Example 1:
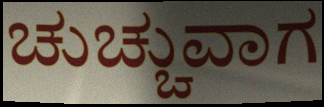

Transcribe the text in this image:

ಚುಚ್ಚುವಾಗ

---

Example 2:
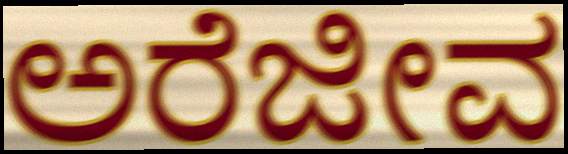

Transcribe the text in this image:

ಅರೆಜೀವ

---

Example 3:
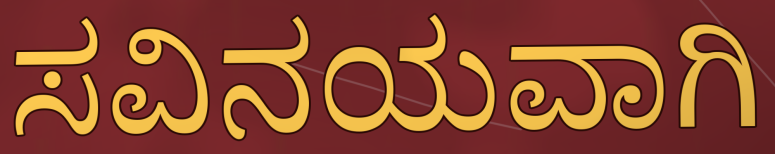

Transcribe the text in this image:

ಸವಿನಯವಾಗಿ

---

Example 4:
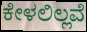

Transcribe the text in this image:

ಕೇಳಲಿಲ್ಲವೆ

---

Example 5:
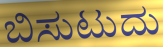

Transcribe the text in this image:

ಬಿಸುಟುದು